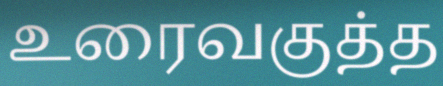
உரைவகுத்த